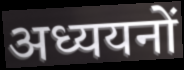
अध्ययनों